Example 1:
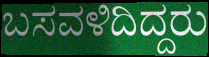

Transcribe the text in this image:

ಬಸವಳಿದಿದ್ದರು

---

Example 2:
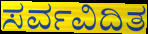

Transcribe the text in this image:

ಸರ್ವವಿದಿತ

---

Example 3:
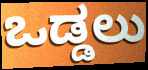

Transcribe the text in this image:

ಒಡ್ಡಲು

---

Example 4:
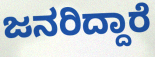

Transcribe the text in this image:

ಜನರಿದ್ದಾರೆ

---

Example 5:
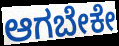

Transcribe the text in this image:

ಆಗಬೇಕೇ